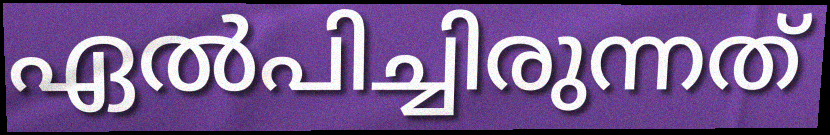
ഏൽപിച്ചിരുന്നത്